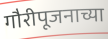
गौरीपूजनाच्या